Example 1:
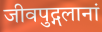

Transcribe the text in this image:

जीवपुद्गलानां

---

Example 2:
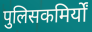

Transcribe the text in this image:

पुलिसकमिर्यों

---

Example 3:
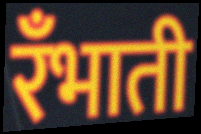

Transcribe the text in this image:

रँभाती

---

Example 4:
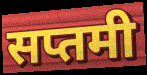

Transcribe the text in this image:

सप्तमी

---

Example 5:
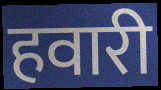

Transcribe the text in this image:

हवारी